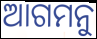
ଆଗମନୁ